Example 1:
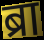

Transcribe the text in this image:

ब्रा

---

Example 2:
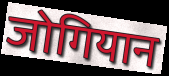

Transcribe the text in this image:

जोगियान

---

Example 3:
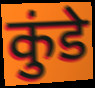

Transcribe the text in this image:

कुंडे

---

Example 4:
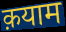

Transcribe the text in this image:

क़याम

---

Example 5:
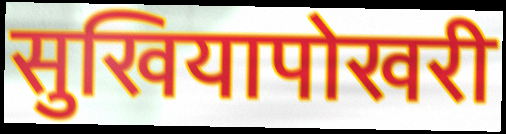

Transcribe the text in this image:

सुखियापोखरी